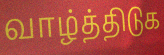
வாழ்த்திடுக